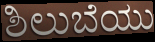
ಶಿಲುಬೆಯು